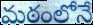
మఠంలోనే